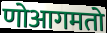
णोआगमतो